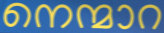
നെന്മാറ